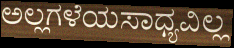
ಅಲ್ಲಗಳೆಯಸಾಧ್ಯವಿಲ್ಲ